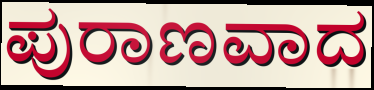
ಪುರಾಣವಾದ